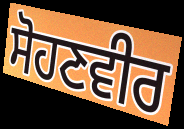
ਸੋਹਣਵੀਰ